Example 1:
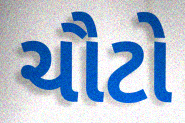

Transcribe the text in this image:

ચૌટો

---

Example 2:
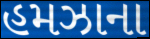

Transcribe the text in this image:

હમઝાના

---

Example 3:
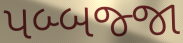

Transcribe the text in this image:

પબ્બજ્જા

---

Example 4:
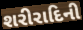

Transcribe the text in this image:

શરીરાદિની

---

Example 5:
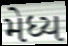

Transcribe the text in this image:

મેધ્ય